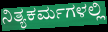
ನಿತ್ಯಕರ್ಮಗಳಲ್ಲಿ